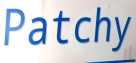
Patchy